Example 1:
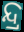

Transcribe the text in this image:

ନ୍ଦ୍ର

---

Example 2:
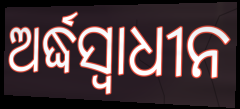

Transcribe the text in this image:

ଅର୍ଦ୍ଧସ୍ୱାଧୀନ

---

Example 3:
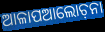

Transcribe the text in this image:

ଆଳାପଆଲୋଚ଼ନା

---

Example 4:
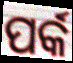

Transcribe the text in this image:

ପର୍କ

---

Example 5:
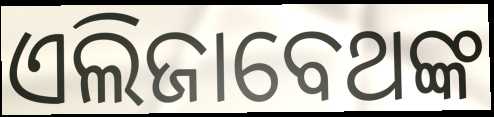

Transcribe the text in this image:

ଏଲିଜାବେଥଙ୍କ